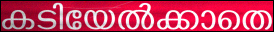
കടിയേൽക്കാതെ